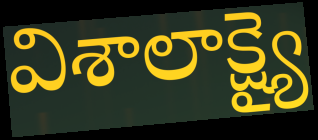
విశాలాక్ష్యై